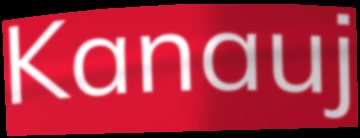
Kanauj